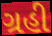
ગ્રહી